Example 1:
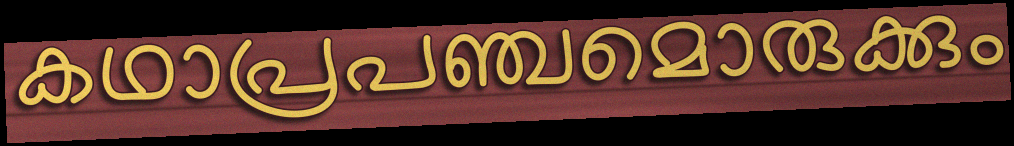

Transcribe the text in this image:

കഥാപ്രപഞ്ചമൊരുക്കും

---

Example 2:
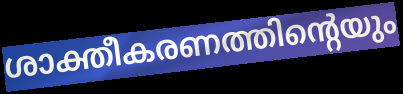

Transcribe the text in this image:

ശാക്തീകരണത്തിന്റെയും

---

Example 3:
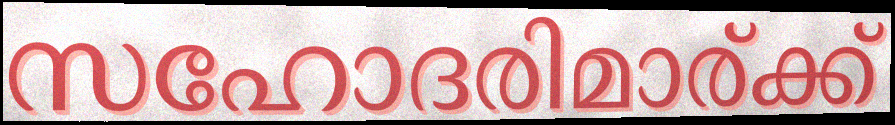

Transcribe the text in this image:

സഹോദരിമാര്ക്ക്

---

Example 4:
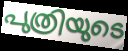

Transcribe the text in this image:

പുത്രിയുടെ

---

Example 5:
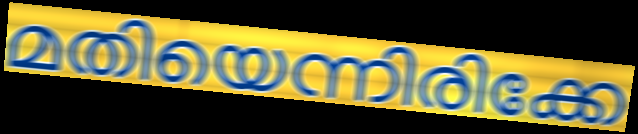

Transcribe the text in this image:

മതിയെന്നിരിക്കേ